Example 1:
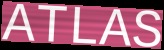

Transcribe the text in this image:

ATLAS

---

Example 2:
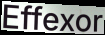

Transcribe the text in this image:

Effexor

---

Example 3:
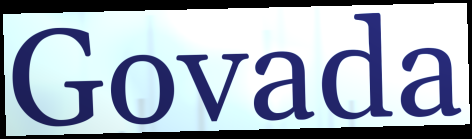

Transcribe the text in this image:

Govada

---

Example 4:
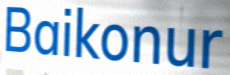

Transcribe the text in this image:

Baikonur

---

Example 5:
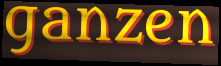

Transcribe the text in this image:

ganzen